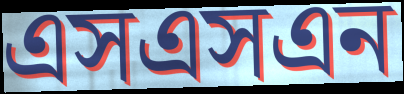
এসএসএন